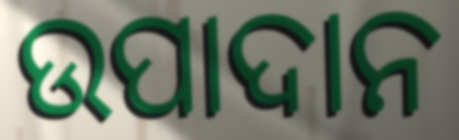
ଉପାଦାନ